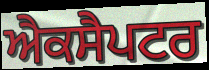
ਐਕਸੈਪਟਰ